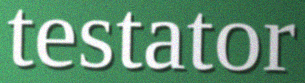
testator